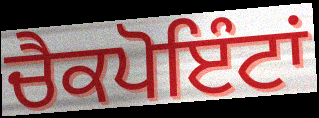
ਚੈਕਪੋਇੰਟਾਂ